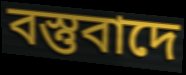
বস্তুবাদে